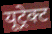
यूट्रेक्ट